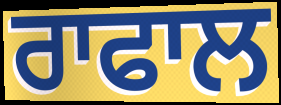
ਰਾਫਾਲ